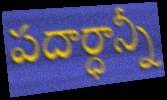
పదార్ధాన్నీ